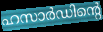
ഹസാർഡിന്റെ